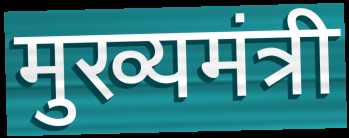
मुख्यमंत्री